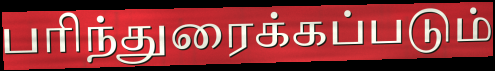
பரிந்துரைக்கப்படும்